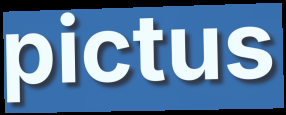
pictus